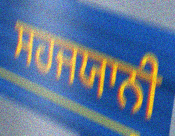
ਸਹਜਯਾਨੀ